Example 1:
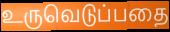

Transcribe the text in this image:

உருவெடுப்பதை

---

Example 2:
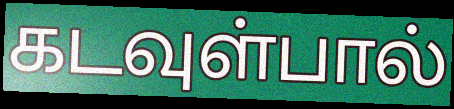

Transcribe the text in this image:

கடவுள்பால்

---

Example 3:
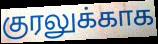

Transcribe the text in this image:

குரலுக்காக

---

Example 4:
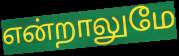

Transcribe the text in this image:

என்றாலுமே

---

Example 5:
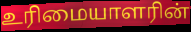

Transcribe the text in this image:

உரிமையாளரின்